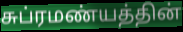
சுப்ரமண்யத்தின்